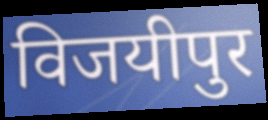
विजयीपुर